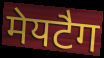
मेयटैग